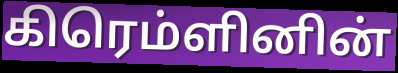
கிரெம்ளினின்